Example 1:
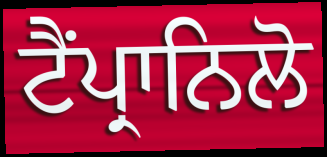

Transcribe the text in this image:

ਟੈਂਪ੍ਰਾਨਿਲੋ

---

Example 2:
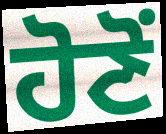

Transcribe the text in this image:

ਹੋਣੋਂ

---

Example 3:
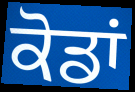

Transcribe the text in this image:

ਕੋਡਾਂ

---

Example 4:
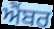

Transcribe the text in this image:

ਐਂਬਰ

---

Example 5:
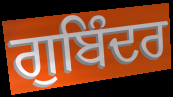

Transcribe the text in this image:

ਗੁਬਿੰਦਰ